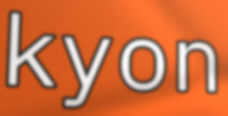
kyon